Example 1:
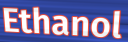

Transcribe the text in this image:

Ethanol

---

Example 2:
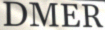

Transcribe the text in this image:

DMER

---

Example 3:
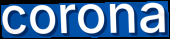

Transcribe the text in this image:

corona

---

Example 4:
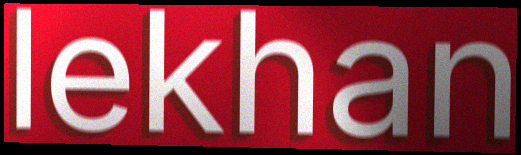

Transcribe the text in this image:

lekhan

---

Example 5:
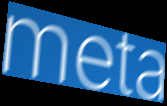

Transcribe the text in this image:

meta